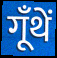
गूँथें